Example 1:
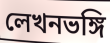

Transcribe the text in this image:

লেখনভঙ্গি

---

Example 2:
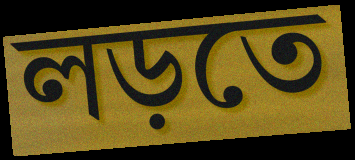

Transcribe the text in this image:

লড়তে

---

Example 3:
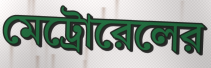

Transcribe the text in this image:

মেট্রোরেলের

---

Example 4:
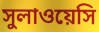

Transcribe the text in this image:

সুলাওয়েসি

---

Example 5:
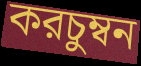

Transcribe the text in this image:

করচুম্বন